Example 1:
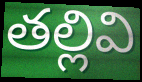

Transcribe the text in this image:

తల్లివి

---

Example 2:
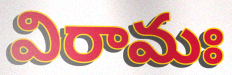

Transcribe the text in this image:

విరామః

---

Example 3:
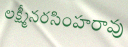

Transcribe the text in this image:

లక్ష్మీనరసింహరావు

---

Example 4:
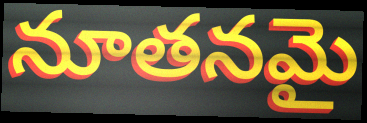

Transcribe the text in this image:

నూతనమై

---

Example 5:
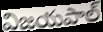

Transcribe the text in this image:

విజయపాల్